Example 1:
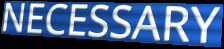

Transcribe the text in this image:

NECESSARY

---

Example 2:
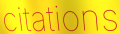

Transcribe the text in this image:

citations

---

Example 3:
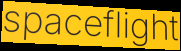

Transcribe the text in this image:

spaceflight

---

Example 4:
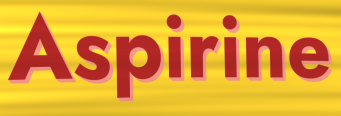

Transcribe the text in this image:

Aspirine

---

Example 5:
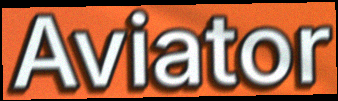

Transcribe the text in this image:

Aviator